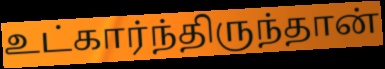
உட்கார்ந்திருந்தான்